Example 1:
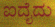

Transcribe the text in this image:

ಐದೈದು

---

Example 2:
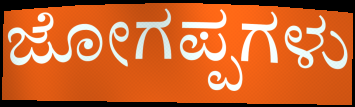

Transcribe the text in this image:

ಜೋಗಪ್ಪಗಳು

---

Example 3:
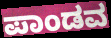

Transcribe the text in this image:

ಪಾಂಡವ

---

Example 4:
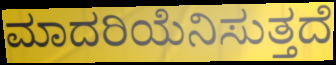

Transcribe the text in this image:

ಮಾದರಿಯೆನಿಸುತ್ತದೆ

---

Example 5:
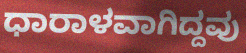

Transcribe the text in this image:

ಧಾರಾಳವಾಗಿದ್ದವು